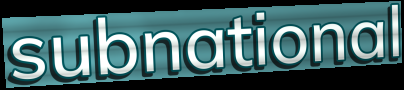
subnational